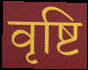
वृष्टि